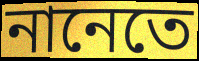
নানেতে